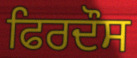
ਫਿਰਦੌਸ